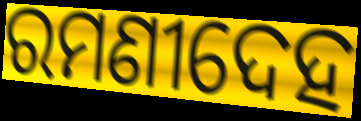
ରମଣୀଦେହ